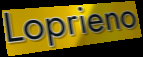
Loprieno